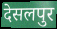
देसलपुर